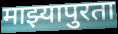
माझ्यापुरता